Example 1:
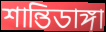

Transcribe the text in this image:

শান্তিডাঙ্গা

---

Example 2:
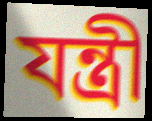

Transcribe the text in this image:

যন্ত্রী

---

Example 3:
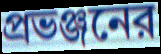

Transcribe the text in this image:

প্রভঞ্জনের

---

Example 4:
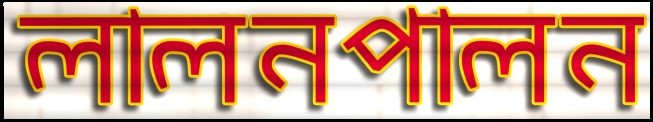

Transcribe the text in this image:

লালনপালন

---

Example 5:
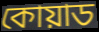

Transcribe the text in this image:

কোয়াড